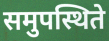
समुपस्थिते